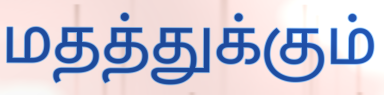
மதத்துக்கும்